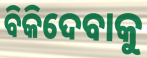
ବିକିଦେବାକୁ